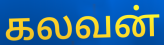
கலவன்